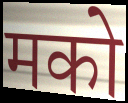
मको